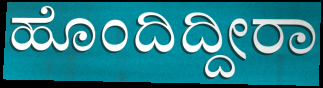
ಹೊಂದಿದ್ದೀರಾ